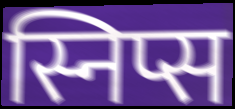
स्निप्स